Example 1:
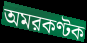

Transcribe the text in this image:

অমরকণ্টক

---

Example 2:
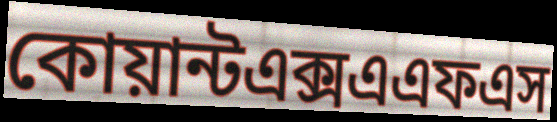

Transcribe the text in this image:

কোয়ান্টএক্সএএফএস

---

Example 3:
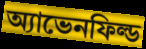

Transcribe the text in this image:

অ্যাভেনফিল্ড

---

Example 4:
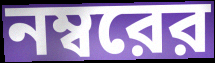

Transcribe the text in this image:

নম্বরের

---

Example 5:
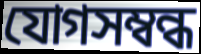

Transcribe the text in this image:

যোগসম্বন্ধ